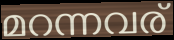
മറന്നവര്